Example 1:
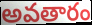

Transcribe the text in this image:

అవతారం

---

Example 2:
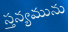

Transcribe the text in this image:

స్తన్యమును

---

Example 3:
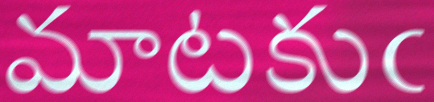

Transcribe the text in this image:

మాటకుఁ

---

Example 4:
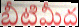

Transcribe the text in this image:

బీటిమీద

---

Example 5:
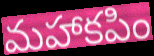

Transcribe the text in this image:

మహాకపిం